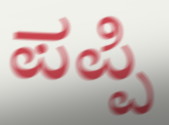
ಪಪ್ಪಿ